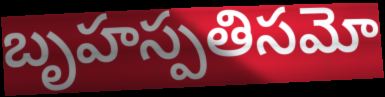
బృహస్పతిసమో